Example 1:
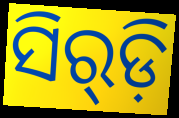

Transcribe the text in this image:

ସିର୍‌ଡ଼ି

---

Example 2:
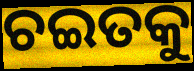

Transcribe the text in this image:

ଚଇତକୁ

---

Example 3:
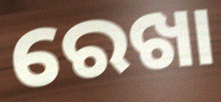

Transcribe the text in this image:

ରେଖା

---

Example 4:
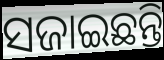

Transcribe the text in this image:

ସଜାଇଛନ୍ତି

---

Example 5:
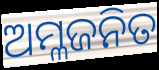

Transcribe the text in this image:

ଅମ୍ଳଜନିତ